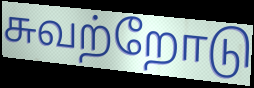
சுவற்றோடு